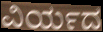
ವಿರ್ಯದ